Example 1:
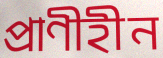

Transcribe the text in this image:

প্রাণীহীন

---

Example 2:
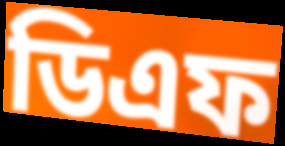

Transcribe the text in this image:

ডিএফ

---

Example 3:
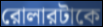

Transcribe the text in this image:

রোলারটাকে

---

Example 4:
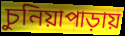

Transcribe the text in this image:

চুনিয়াপাড়ায়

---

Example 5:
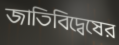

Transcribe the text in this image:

জাতিবিদ্বেষের